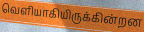
வெளியாகியிருக்கின்றன